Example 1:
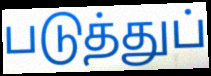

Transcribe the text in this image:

படுத்துப்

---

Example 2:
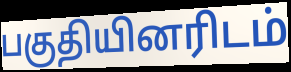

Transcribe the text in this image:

பகுதியினரிடம்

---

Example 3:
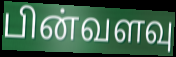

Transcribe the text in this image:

பின்வளவு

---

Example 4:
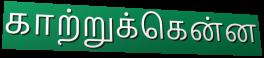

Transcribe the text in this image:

காற்றுக்கென்ன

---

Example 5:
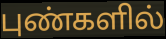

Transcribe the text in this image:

புண்களில்